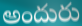
అందురు